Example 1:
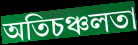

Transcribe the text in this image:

অতিচঞ্চলতা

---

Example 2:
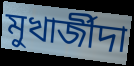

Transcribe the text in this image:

মুখার্জীদা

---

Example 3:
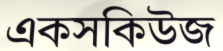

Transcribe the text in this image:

একসকিউজ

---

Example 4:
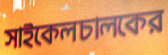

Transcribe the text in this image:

সাইকেলচালকের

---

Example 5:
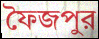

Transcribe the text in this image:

ফৈজপুর